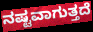
ನಷ್ಟವಾಗುತ್ತದೆ